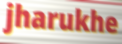
jharukhe